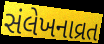
સંલેખનાવ્રત